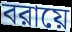
বরায়ে